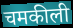
चमकीली